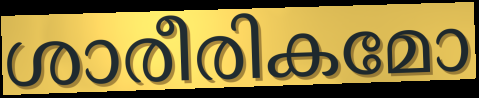
ശാരീരികമോ